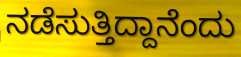
ನಡೆಸುತ್ತಿದ್ದಾನೆಂದು